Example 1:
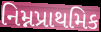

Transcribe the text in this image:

નિમ્નપ્રાથમિક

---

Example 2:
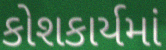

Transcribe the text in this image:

કોશકાર્યમાં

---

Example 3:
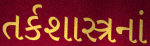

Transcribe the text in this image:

તર્કશાસ્ત્રનાં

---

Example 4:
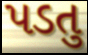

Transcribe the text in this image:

પડતુ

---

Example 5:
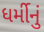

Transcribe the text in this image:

ધર્મીનું